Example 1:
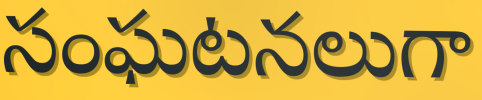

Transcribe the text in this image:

సంఘటనలుగా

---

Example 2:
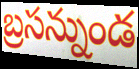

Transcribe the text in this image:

బ్రసన్నుండ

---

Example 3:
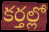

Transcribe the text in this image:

కర్తల్లో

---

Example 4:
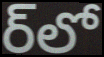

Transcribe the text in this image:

ర్‌లో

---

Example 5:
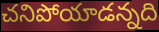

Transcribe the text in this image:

చనిపోయాడన్నది